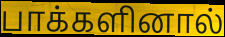
பாக்களினால்